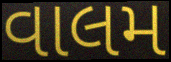
વાલમ